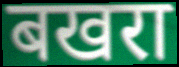
बखरा